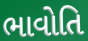
ભાવોતિ